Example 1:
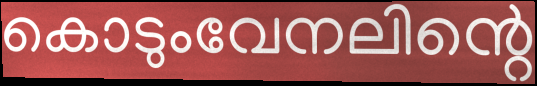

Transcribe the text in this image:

കൊടുംവേനലിന്റെ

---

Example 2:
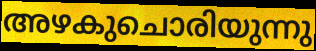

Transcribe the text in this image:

അഴകുചൊരിയുന്നു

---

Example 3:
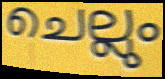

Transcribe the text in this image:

ചെല്ലും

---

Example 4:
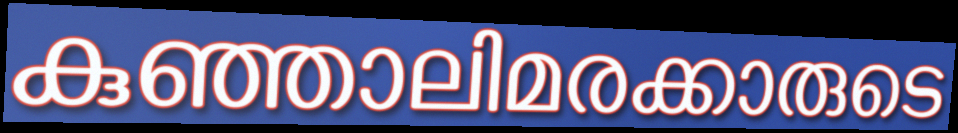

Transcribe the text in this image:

കുഞ്ഞാലിമരക്കാരുടെ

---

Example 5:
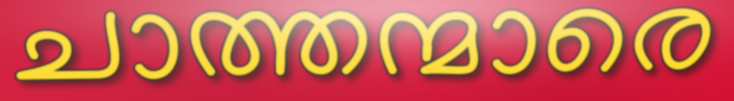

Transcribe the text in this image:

ചാത്തന്മാരെ